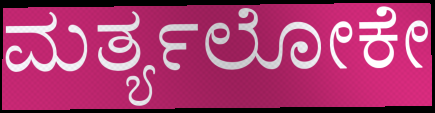
ಮರ್ತ್ಯಲೋಕೇ